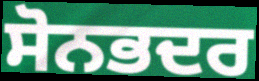
ਸੋਨਭਦਰ